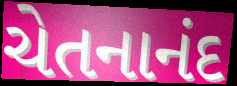
ચેતનાનંદ